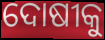
ଦୋଷୀକୁ